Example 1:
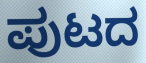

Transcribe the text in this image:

ಪುಟದ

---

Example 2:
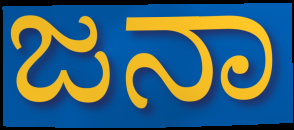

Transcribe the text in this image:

ಜನಾ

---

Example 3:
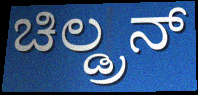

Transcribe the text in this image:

ಚಿಲ್ಡ್ರನ್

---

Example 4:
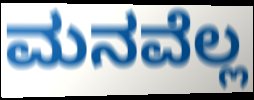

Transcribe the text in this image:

ಮನವೆಲ್ಲ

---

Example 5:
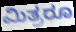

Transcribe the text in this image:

ಮಿತ್ರರೂ